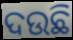
ଦଉଛି